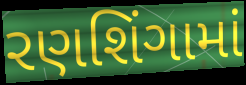
રણશિંગામાં